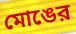
মোঙের